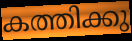
കത്തിക്കു